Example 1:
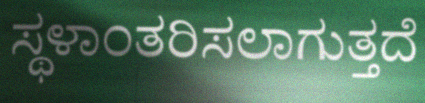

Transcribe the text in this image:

ಸ್ಥಳಾಂತರಿಸಲಾಗುತ್ತದೆ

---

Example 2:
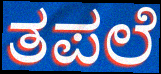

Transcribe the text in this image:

ತಪಲೆ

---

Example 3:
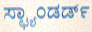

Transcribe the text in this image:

ಸ್ಟ್ಯಾಂಡರ್ಡ್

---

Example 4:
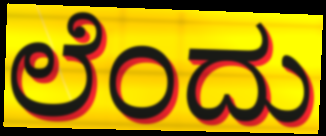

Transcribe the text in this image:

ಲೆಂದು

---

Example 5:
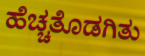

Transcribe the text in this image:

ಹೆಚ್ಚತೊಡಗಿತು